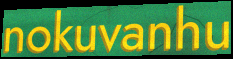
nokuvanhu